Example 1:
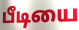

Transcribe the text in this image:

பீடியை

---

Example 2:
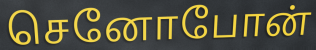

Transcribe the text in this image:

செனோபோன்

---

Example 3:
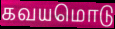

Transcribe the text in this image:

கவயமொடு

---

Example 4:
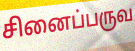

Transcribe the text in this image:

சினைப்பருவ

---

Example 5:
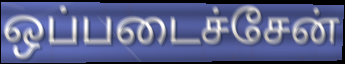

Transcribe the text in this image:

ஒப்படைச்சேன்